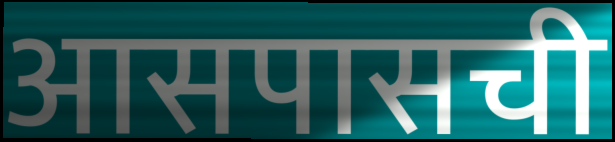
आसपासची